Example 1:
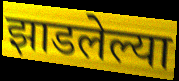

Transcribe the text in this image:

झाडलेल्या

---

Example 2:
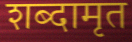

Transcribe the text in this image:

शब्दामृत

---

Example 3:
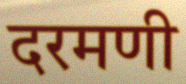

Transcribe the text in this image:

दरमणी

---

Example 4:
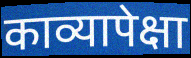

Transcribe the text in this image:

काव्यापेक्षा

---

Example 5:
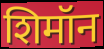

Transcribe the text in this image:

शिमॉन